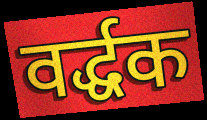
वर्द्धक